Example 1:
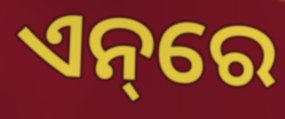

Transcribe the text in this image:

ଏନ୍‌ରେ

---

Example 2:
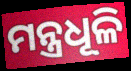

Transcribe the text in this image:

ମନ୍ତ୍ରଧୂଳି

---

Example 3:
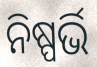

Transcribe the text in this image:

ନିଷ୍ପର୍ଭି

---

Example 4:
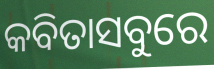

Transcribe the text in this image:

କବିତାସବୁରେ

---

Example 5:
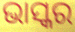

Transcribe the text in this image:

ଭାସ୍କର